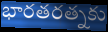
భారతరత్నకు